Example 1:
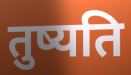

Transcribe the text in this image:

तुष्यति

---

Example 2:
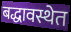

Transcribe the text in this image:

बद्धावस्थेत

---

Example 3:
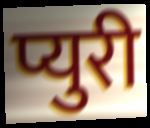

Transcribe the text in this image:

प्युरी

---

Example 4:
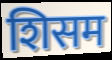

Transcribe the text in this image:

शिसम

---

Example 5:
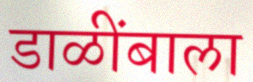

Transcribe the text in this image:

डाळींबाला